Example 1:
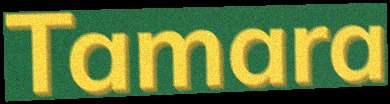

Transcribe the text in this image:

Tamara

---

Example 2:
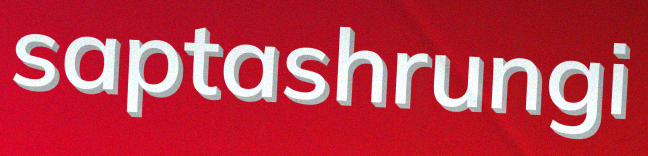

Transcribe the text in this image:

saptashrungi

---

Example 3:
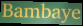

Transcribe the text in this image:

Bambaye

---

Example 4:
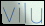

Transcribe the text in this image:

vilu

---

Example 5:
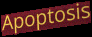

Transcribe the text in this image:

Apoptosis